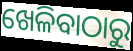
ଖେଳିବାଠାରୁ